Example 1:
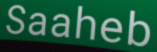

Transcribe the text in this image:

Saaheb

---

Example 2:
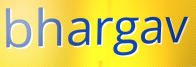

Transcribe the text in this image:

bhargav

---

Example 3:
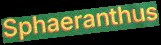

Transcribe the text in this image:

Sphaeranthus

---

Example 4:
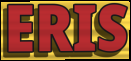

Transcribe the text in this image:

ERIS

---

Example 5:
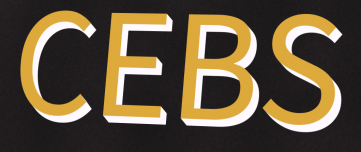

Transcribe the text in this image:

CEBS